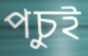
পচুই